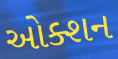
ઓક્શન